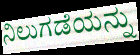
ನಿಲುಗಡೆಯನ್ನು